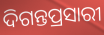
ଦିଗନ୍ତପ୍ରସାରୀ